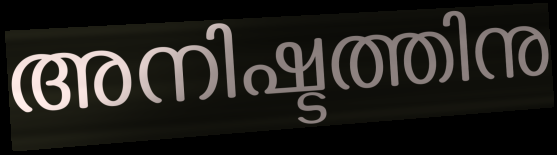
അനിഷ്ടത്തിനു